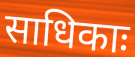
साधिकाः